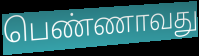
பெண்ணாவது